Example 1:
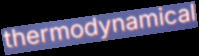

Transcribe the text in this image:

thermodynamical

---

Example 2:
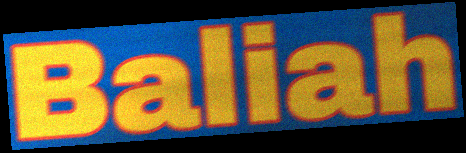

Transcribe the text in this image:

Baliah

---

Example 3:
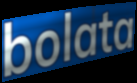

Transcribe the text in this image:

bolata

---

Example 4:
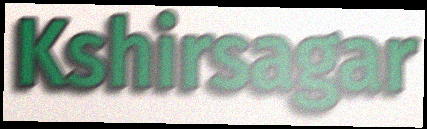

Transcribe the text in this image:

Kshirsagar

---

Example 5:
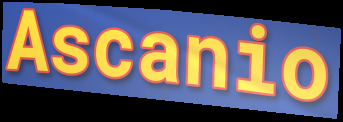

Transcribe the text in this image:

Ascanio